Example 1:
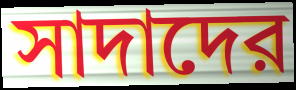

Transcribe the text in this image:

সাদাদের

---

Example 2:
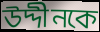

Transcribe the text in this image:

উদ্দীনকে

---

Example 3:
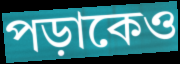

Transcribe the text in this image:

পড়াকেও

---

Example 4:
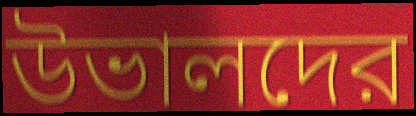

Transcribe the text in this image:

উভালদের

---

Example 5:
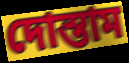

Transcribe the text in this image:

দোস্তাম